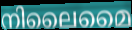
നിലൈമൈ